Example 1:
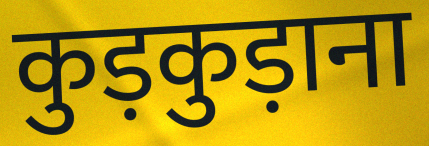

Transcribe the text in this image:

कुड़कुड़ाना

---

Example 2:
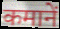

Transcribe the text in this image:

कमानें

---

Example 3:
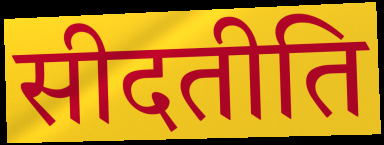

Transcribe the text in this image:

सीदतीति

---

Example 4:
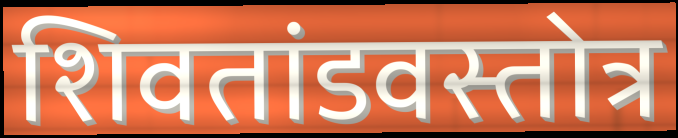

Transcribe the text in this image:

शिवतांडवस्तोत्र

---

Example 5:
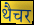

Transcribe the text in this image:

थैचर